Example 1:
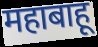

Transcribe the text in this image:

महाबाहू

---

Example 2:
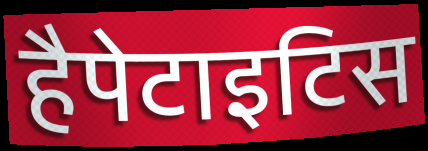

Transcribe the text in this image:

हैपेटाइटिस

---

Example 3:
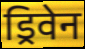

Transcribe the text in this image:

ड्रिवेन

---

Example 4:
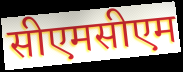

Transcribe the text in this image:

सीएमसीएम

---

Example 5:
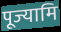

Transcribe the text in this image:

पूज्यामि